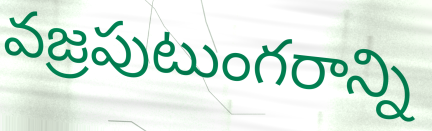
వజ్రపుటుంగరాన్ని